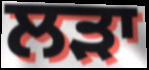
ਲੜਾ